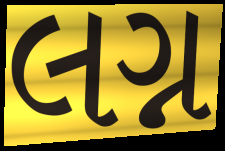
લગ્ન